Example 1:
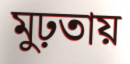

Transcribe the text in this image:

মুঢ়তায়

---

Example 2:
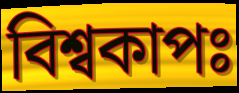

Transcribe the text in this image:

বিশ্বকাপঃ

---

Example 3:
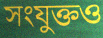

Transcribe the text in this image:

সংযুক্তও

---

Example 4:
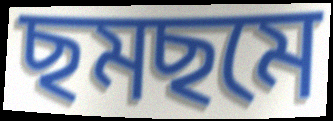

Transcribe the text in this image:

ছমছমে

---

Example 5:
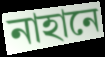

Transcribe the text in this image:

নাহানে